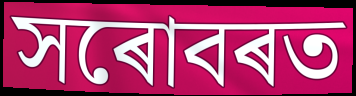
সৰোবৰত